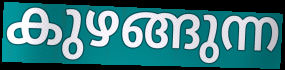
കുഴങ്ങുന്ന